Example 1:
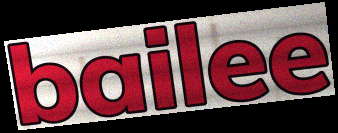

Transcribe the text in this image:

bailee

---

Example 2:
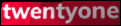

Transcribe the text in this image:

twentyone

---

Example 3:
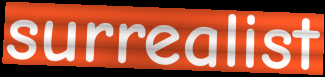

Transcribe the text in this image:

surrealist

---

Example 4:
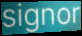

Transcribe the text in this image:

signor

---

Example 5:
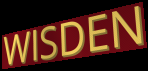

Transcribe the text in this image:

WISDEN